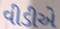
વીડીએ